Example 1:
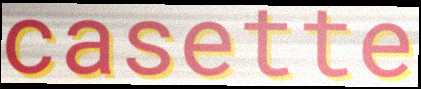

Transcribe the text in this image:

casette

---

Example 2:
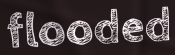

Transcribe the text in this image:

flooded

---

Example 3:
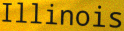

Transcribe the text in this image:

Illinois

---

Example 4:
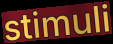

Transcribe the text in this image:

stimuli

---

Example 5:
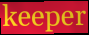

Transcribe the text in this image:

keeper